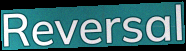
Reversal